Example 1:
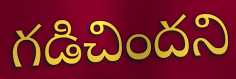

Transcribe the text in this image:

గడిచిందని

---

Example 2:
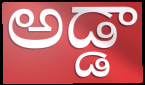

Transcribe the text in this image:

అడ్డా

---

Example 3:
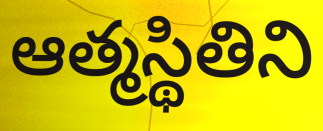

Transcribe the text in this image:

ఆత్మస్థితిని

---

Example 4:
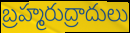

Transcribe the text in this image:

బ్రహ్మరుద్రాదులు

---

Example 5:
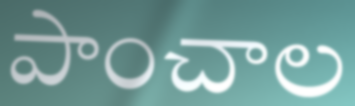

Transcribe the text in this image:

పాంచాల